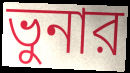
ভুনার